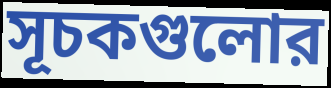
সূচকগুলোর